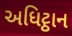
અધિટ્ઠાન